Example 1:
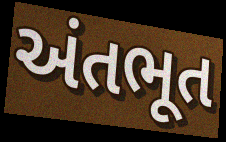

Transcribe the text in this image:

અંતભૂત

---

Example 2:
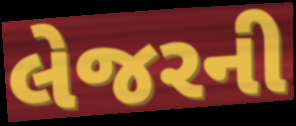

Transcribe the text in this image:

લેજરની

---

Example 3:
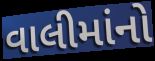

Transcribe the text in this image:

વાલીમાંનો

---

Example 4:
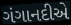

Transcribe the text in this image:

ગંગાનદીએ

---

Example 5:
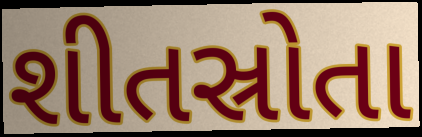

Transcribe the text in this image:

શીતસ્રોતા